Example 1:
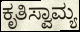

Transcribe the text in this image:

ಕೃತಿಸ್ವಾಮ್ಯ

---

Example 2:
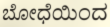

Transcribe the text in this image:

ಬೋಧೆಯಿಂದ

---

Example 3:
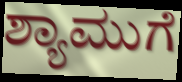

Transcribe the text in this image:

ಶ್ಯಾಮುಗೆ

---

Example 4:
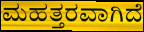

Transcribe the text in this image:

ಮಹತ್ತರವಾಗಿದೆ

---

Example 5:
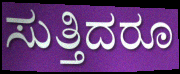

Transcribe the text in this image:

ಸುತ್ತಿದರೂ